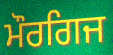
ਮੌਰਗਿਜ